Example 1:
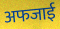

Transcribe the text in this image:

अफजाई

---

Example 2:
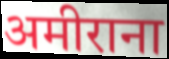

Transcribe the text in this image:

अमीराना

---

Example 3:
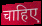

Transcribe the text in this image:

चाहिए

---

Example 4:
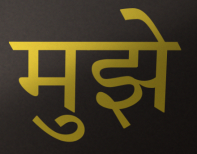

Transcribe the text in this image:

मुझे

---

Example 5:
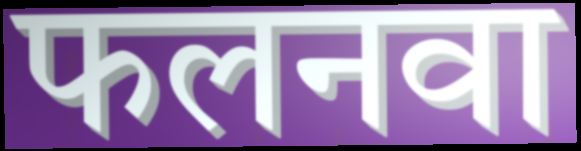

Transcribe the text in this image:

फलनवा